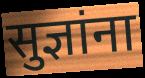
सुज्ञांना